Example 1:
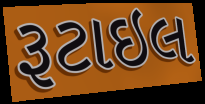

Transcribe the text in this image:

રૂટાઇલ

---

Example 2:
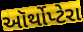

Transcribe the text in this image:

ઑર્થોપ્ટેરા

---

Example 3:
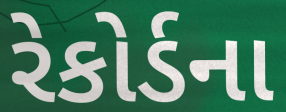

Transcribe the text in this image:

રેકોર્ડના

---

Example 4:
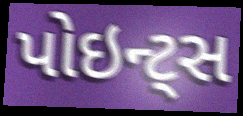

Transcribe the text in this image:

પોઇન્ટ્સ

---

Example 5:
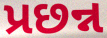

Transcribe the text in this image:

પ્રછન્ન